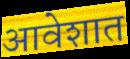
आवेशात